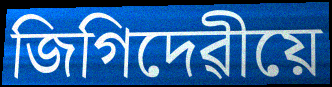
জিগিদেৱীয়ে